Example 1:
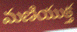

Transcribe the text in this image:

మణియుక్త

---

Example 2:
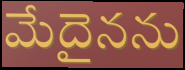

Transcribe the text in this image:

మేదైనను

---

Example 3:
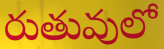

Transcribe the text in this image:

రుతువులో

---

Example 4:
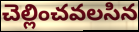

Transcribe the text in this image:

చెల్లించవలసిన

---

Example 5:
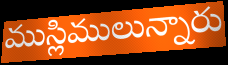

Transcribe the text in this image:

ముస్లిములున్నారు